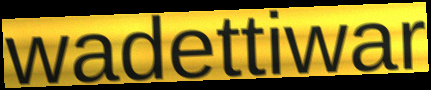
wadettiwar